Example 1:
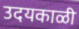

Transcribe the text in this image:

उदयकाळी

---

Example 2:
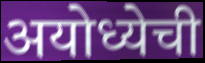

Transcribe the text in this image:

अयोध्येची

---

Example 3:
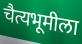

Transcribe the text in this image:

चैत्यभूमीला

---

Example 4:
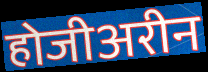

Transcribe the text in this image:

होजीअरीन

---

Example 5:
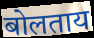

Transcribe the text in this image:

बोलताय